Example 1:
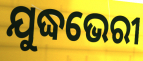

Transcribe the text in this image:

ଯୁଦ୍ଧଭେରୀ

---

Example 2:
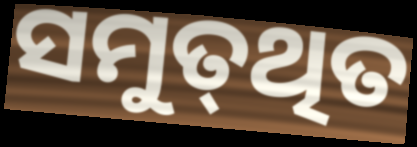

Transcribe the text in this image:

ସମୁତ୍‌ଥିତ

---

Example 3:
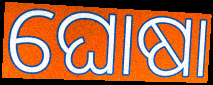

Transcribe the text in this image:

ଘୋଷା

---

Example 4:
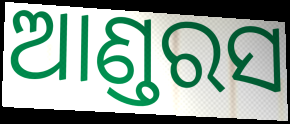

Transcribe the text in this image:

ଆଣ୍ଡରସ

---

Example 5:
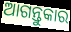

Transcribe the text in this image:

ଆଗନ୍ତୁକାର